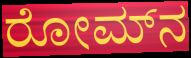
ರೋಮ್‍ನ